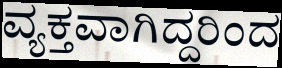
ವ್ಯಕ್ತವಾಗಿದ್ದರಿಂದ